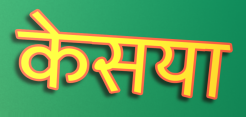
केसया